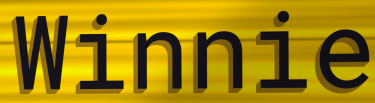
Winnie